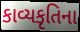
કાવ્યકૃતિના